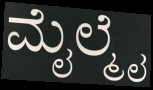
ಮೈಲ್ಮೈ